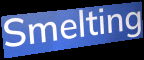
Smelting